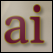
ai